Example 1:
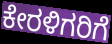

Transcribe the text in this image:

ಕೇರಳಿಗರಿಗೆ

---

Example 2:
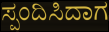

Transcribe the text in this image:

ಸ್ಪಂದಿಸಿದಾಗ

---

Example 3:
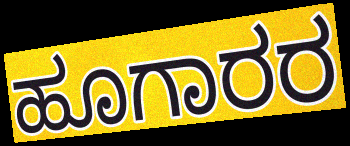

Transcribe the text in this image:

ಹೂಗಾರರ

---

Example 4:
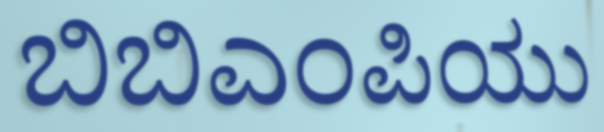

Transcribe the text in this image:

ಬಿಬಿಎಂಪಿಯು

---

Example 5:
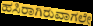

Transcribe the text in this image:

ಹಸಿರಾಗಿರುವಾಗಲೇ